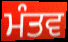
ਮੰਤਵ